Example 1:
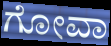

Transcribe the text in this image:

ಗೋವಾ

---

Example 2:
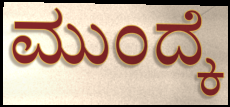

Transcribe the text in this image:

ಮುಂದ್ಕೆ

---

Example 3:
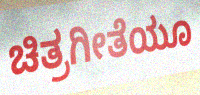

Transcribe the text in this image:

ಚಿತ್ರಗೀತೆಯೂ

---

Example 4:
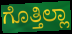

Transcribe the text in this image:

ಗೊತ್ತಿಲ್ಲಾ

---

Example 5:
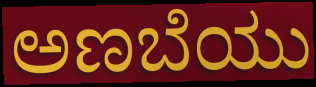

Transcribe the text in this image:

ಅಣಬೆಯು